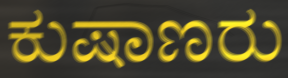
ಕುಷಾಣರು